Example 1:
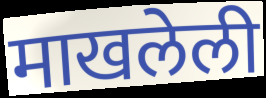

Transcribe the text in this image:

माखलेली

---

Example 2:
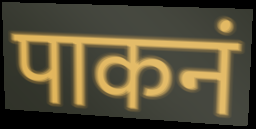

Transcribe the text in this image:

पाकनं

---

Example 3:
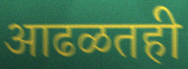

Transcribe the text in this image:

आढळतही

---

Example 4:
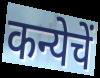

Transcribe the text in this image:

कन्येचें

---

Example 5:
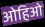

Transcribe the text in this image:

ओहिओ